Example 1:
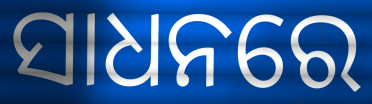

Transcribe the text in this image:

ସାଧନରେ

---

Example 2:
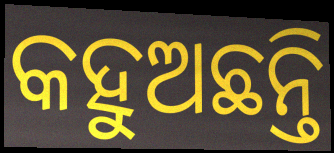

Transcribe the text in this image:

କହୁଅଛନ୍ତି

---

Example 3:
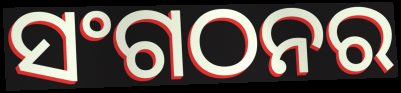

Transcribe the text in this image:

ସଂଗଠନର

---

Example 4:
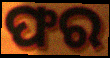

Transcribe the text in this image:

ଫର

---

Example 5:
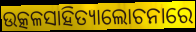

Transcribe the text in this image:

ଉତ୍କଳସାହିତ୍ୟାଲୋଚନାରେ